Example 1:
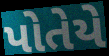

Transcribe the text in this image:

પોતેયે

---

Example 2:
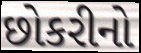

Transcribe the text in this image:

છોકરીનો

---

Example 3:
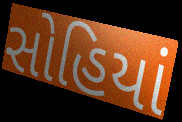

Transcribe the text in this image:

સોહિયાં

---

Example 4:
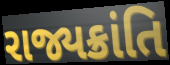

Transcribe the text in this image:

રાજ્યક્રાંતિ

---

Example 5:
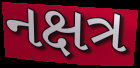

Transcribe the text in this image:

નક્ષત્ર